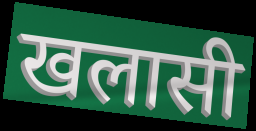
खलासी